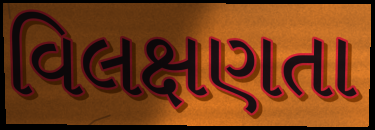
વિલક્ષણતા